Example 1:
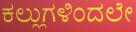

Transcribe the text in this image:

ಕಲ್ಲುಗಳಿಂದಲೇ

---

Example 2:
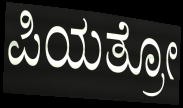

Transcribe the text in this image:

ಪಿಯತ್ರೋ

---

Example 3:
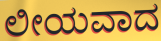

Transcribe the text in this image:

ಲೀಯವಾದ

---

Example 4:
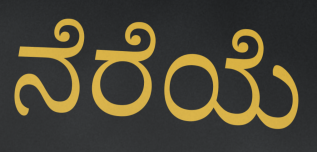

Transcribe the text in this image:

ನೆರೆಯೆ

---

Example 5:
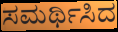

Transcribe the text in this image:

ಸಮರ್ಥಿಸಿದ